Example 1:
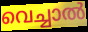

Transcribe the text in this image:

വെച്ചാൽ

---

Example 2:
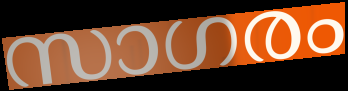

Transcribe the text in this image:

സാഗരം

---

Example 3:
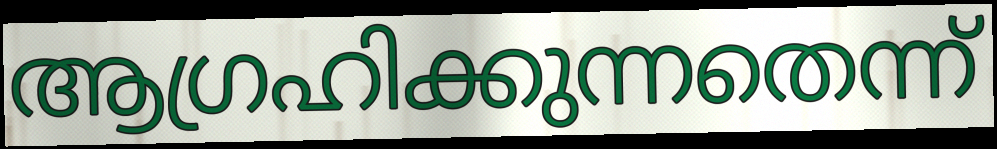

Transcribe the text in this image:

ആഗ്രഹിക്കുന്നതെന്ന്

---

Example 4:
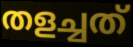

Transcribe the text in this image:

തളച്ചത്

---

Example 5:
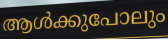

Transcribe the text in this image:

ആൾക്കുപോലും